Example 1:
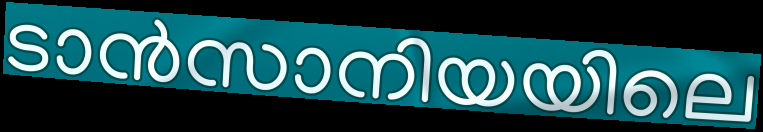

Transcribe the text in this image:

ടാൻസാനിയയിലെ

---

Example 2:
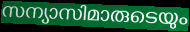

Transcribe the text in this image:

സന്യാസിമാരുടെയും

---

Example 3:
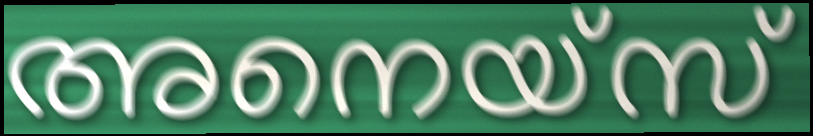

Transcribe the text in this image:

അനെയ്സ്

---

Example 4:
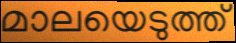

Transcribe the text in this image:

മാലയെടുത്ത്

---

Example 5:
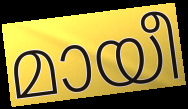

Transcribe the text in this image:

മായീ